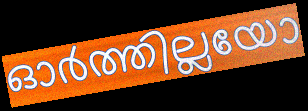
ഓർത്തില്ലയോ